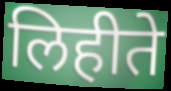
लिहीते